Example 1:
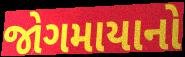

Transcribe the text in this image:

જોગમાયાનો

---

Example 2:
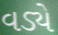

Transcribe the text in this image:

વડ્યે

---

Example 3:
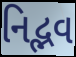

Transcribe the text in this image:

નિદ્ભવ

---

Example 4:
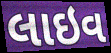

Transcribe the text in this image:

લાઇવ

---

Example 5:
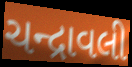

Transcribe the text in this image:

ચન્દ્રાવલી